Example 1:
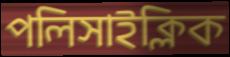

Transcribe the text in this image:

পলিসাইক্লিক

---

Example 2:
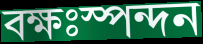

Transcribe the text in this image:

বক্ষঃস্পন্দন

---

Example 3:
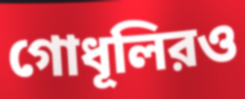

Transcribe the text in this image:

গোধূলিরও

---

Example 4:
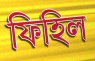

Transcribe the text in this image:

ফিহিল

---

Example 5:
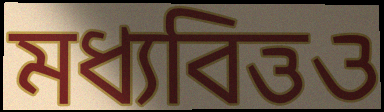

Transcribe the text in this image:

মধ্যবিত্তও